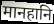
मानहानि